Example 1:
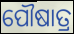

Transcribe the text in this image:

ପୌଷାତ୍ର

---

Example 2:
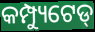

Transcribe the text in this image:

କମ୍ପ୍ୟୁଟେଡ୍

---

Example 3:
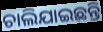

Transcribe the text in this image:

ଚାଲିଯାଇଛନ୍ତି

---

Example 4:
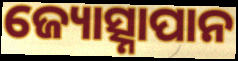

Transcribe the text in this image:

ଜ୍ୟୋତ୍ସ୍ନାପାନ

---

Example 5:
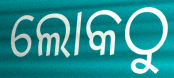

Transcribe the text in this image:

ଲୋକଠୁ